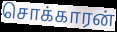
சொக்காரன்